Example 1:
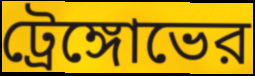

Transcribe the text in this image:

ট্রেঙ্গোভের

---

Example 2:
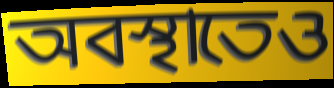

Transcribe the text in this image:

অবস্থাতেও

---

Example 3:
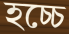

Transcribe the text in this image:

হচ্চে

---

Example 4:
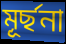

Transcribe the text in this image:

মূর্ছনা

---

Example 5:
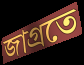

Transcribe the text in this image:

জাগ্রতে